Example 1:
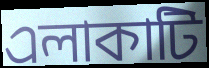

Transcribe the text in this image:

এলাকাটি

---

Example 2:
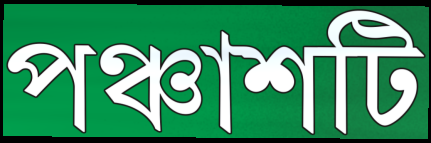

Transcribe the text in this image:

পঞ্চাশটি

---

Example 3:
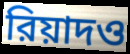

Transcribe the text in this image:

রিয়াদও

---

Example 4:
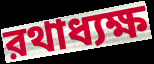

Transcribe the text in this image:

রথাধ্যক্ষ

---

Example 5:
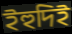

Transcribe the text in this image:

ইহুদিই